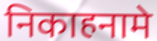
निकाहनामे